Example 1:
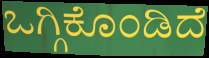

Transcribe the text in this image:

ಒಗ್ಗಿಕೊಂಡಿದೆ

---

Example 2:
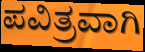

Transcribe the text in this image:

ಪವಿತ್ರವಾಗಿ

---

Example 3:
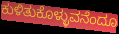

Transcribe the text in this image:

ಕುಳಿತುಕೊಳ್ಳುವನೆಂದೂ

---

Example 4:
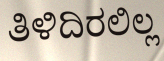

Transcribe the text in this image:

ತಿಳಿದಿರಲಿಲ್ಲ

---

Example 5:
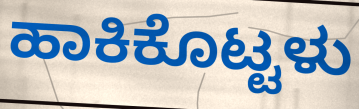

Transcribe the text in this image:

ಹಾಕಿಕೊಟ್ಟಳು